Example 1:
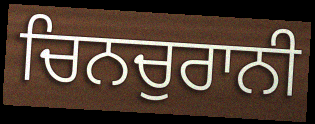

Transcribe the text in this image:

ਚਿਨਚੁਰਾਨੀ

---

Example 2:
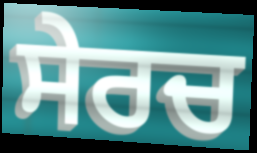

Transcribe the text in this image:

ਸੇਰਚ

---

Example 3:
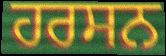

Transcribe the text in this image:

ਹਰਸਨ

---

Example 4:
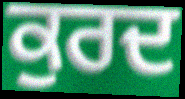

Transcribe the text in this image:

ਕੁਰਦ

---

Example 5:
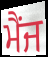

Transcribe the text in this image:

ਮੈਂਜ